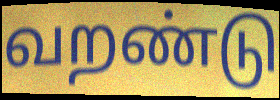
வறண்டு